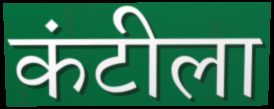
कंटीला